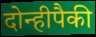
दोन्हीपैकी